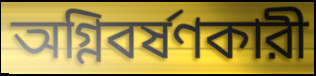
অগ্নিবর্ষণকারী